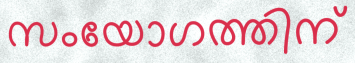
സംയോഗത്തിന്